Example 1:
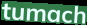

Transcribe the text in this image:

tumach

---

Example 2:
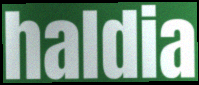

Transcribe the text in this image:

haldia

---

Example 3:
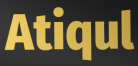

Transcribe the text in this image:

Atiqul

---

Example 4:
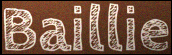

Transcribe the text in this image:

Baillie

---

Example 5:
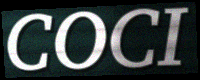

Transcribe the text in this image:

COCI